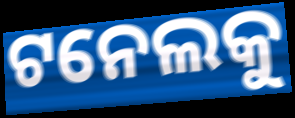
ଟନେଲକୁ